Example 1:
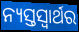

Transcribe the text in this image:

ନ୍ୟସ୍ତସ୍ଵାର୍ଥର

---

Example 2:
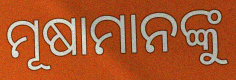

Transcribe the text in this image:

ମୂଷାମାନଙ୍କୁ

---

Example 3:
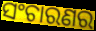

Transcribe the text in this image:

ସଂଚାରଣର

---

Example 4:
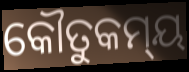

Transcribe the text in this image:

କୌତୁକମ୍‍ୟ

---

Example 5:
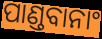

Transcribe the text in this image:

ପାଣ୍ଡବାନାଂ